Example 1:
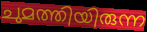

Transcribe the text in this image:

ചുമത്തിയിരുന്ന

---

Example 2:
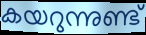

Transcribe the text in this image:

കയറുന്നുണ്ട്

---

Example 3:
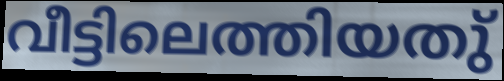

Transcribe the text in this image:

വീട്ടിലെത്തിയതു്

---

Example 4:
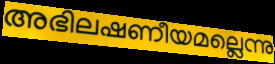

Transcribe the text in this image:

അഭിലഷണീയമല്ലെന്നു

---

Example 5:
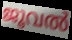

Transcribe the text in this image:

ജൂവൽ